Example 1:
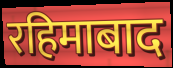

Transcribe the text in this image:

रहिमाबाद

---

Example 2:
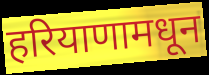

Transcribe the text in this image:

हरियाणामधून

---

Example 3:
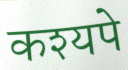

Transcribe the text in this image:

कश्यपे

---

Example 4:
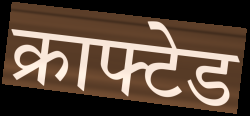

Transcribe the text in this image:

क्राफ्टेड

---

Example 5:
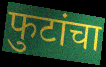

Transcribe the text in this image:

फुटांचा